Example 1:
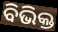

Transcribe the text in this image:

ବିଭିକ୍ତ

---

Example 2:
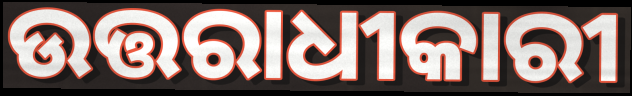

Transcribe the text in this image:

ଉତ୍ତରାଧୀକାରୀ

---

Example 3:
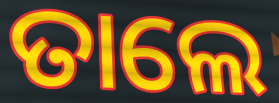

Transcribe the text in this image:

ତାଲେ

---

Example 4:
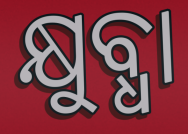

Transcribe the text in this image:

କ୍ଷୁବ୍ଧା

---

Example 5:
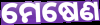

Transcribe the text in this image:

ମେଷେଣ